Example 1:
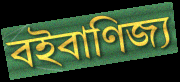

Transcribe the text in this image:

বইবাণিজ্য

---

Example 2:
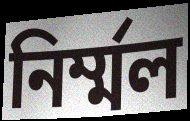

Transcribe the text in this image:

নির্ম্মল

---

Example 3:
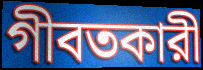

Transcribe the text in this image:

গীবতকারী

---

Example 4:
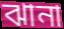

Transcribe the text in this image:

ঝানা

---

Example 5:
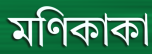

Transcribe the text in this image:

মণিকাকা